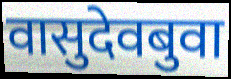
वासुदेवबुवा